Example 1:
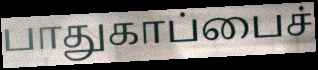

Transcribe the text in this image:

பாதுகாப்பைச்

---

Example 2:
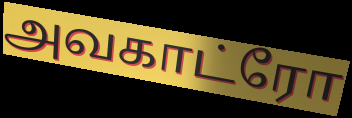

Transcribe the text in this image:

அவகாட்ரோ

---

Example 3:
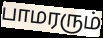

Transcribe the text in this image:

பாமரரும்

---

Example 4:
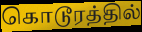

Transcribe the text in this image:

கொடூரத்தில்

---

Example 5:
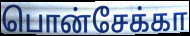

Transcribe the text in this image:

பொன்சேக்கா